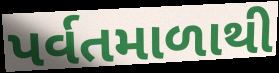
પર્વતમાળાથી